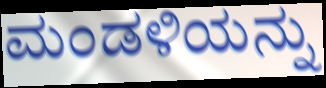
ಮಂಡಳಿಯನ್ನು